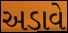
અડાવે